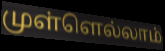
முள்ளெல்லாம்